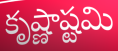
కృష్ణాష్టమి